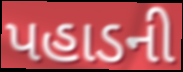
પહાડની